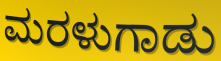
ಮರಳುಗಾಡು